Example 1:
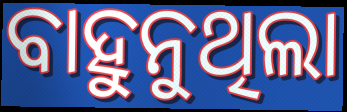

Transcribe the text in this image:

ବାହୁନୁଥିଲା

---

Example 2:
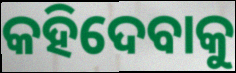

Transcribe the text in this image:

କହିଦେବାକୁ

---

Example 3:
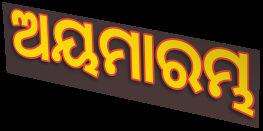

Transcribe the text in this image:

ଅୟମାରମ୍ଭ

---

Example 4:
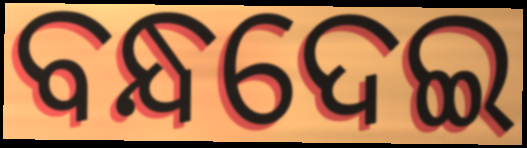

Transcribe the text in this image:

ବନ୍ଧଦେଇ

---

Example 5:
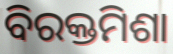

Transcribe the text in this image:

ବିରକ୍ତମିଶା